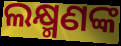
ଲକ୍ଷ୍ମଣଙ୍କ